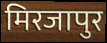
मिरजापुर